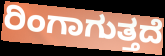
ರಿಂಗಾಗುತ್ತದೆ